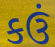
કઉં